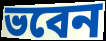
ভবেন